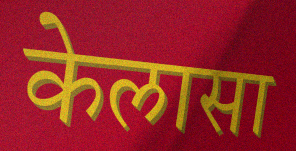
केलासा